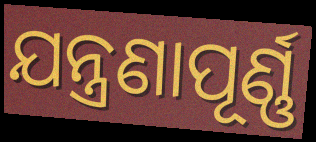
ଯନ୍ତ୍ରଣାପୂର୍ଣ୍ଣ